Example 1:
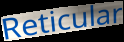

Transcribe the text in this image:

Reticular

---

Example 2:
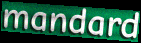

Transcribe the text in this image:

mandard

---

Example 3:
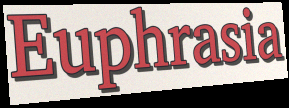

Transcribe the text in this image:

Euphrasia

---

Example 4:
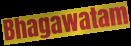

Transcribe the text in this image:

Bhagawatam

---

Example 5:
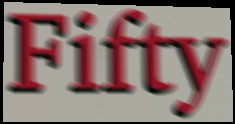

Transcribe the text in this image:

Fifty